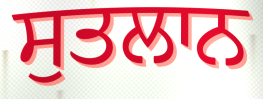
ਸੁਤਲਾਨ